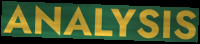
ANALYSIS